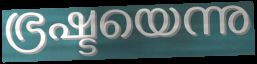
ഭ്രഷ്ടയെന്നു